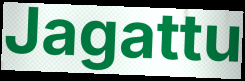
Jagattu